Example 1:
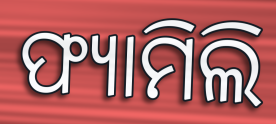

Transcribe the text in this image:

ଫ୍ୟାମିଲି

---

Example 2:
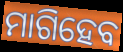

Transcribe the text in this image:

ମାଗିହେବ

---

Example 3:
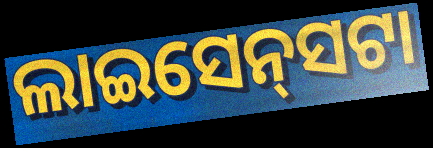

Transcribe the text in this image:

ଲାଇସେନ୍‍ସଟା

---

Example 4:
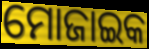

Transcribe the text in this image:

ମୋଜାଇକ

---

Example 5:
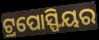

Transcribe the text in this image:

ଟ୍ରପୋସ୍ଫିୟର